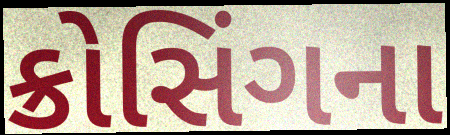
ક્રોસિંગના